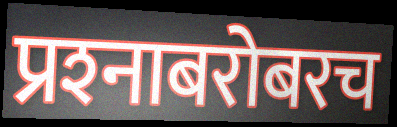
प्रश्‍नाबरोबरच